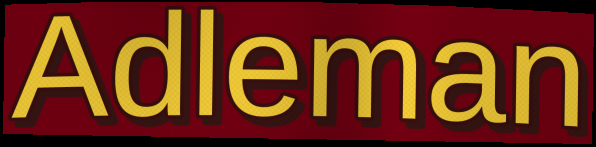
Adleman